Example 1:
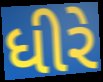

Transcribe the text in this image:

ધીરે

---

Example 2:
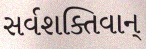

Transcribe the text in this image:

સર્વશક્તિવાન્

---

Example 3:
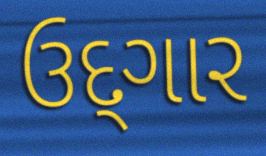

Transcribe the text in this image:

ઉદ્‌ગાર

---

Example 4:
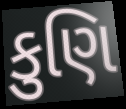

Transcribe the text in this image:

કુણિ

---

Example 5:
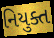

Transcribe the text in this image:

નિયુક્ત